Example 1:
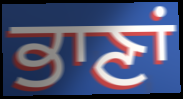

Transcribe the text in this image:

ਭਾਣਾਂ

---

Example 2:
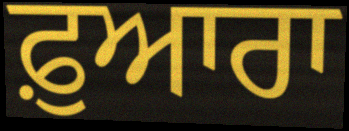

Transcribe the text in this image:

ਫ਼ੁਆਰਾ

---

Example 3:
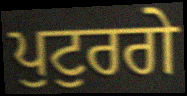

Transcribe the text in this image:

ਪੁਟੁਰਗੇ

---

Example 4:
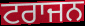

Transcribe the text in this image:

ਟਰਾਜਨ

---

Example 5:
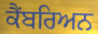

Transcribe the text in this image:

ਕੈਂਬਰਿਅਨ